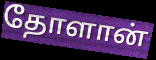
தோளான்